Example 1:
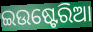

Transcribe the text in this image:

ଇଉଷ୍ଟେରିଆ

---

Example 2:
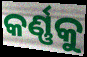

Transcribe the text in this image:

କର୍ଣ୍ଣକୁ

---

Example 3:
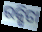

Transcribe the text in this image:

ରକ୍ଷିତା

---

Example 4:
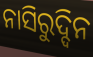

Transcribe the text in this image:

ନାସିରୁଦ୍ଦିନ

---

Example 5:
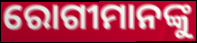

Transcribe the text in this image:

ରୋଗୀମାନଙ୍କୁ